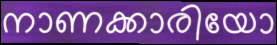
നാണക്കാരിയോ